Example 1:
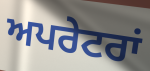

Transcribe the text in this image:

ਅਪਰੇਟਰਾਂ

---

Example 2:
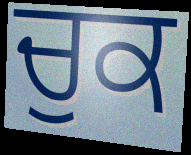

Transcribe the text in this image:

ਚੁਕ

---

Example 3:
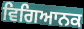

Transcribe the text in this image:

ਵਿਗਿਆਨਕ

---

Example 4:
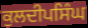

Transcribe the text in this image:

ਕੁਲਦੀਪਸਿੰਘ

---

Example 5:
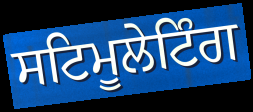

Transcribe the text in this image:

ਸਟਿਮੂਲੇਟਿੰਗ